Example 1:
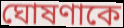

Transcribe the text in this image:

ঘোষণাকে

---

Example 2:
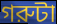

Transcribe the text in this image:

গরুটা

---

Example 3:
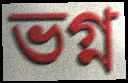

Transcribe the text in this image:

ভগ্ন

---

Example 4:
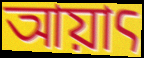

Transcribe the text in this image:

আয়াৎ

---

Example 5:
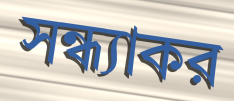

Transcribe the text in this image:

সন্ধ্যাকর